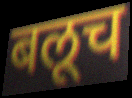
बलूच